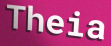
Theia